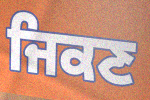
ਜਿਕਣ